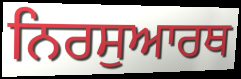
ਨਿਰਸੁਆਰਥ